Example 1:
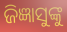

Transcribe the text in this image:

ଜିଜ୍ଞାସୁଙ୍କୁ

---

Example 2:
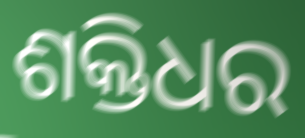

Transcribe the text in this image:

ଶକ୍ତିଧର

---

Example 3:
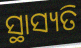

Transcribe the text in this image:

ସ୍ଥାସ୍ୟତି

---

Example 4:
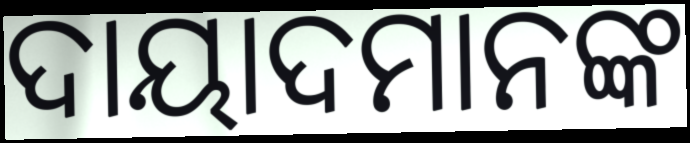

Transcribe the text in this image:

ଦାୟାଦମାନଙ୍କ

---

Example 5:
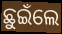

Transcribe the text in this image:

ଛୁଇଁଲେ